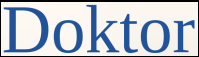
Doktor